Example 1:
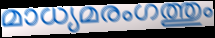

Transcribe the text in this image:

മാധ്യമരംഗത്തും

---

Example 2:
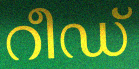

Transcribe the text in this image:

റീഡ്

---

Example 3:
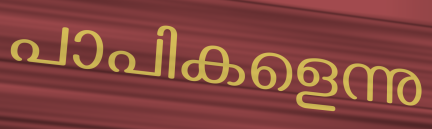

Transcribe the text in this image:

പാപികളെന്നു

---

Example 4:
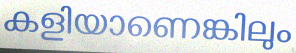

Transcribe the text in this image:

കളിയാണെങ്കിലും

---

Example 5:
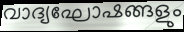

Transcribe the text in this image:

വാദ്യഘോഷങ്ങളും